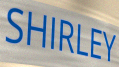
SHIRLEY